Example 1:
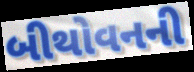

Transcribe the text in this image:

બીથોવનની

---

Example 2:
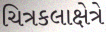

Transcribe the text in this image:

ચિત્રકલાક્ષેત્રે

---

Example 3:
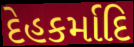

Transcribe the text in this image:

દેહકર્માદિ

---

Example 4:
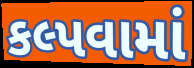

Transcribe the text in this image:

કલ્પવામાં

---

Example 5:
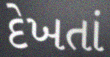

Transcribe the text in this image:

દેખતાં